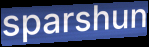
sparshun